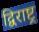
द्विराष्ट्र